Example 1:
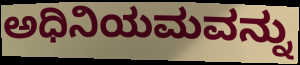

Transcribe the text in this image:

ಅಧಿನಿಯಮವನ್ನು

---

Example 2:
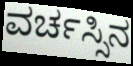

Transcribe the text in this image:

ವರ್ಚಸ್ಸಿನ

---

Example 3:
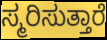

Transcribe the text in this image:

ಸ್ಮರಿಸುತ್ತಾರೆ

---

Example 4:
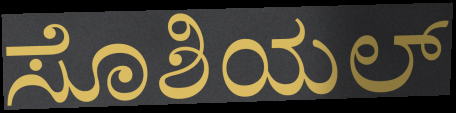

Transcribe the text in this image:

ಸೊಶಿಯಲ್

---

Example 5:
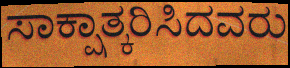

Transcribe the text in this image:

ಸಾಕ್ಷಾತ್ಕರಿಸಿದವರು